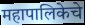
महापालिकेचे